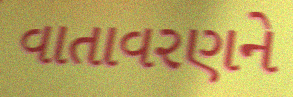
વાતાવરણને